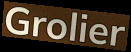
Grolier